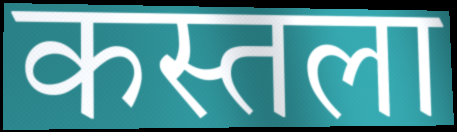
कस्तला